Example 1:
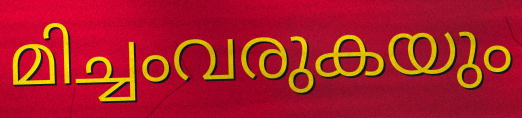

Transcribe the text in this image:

മിച്ചംവരുകയും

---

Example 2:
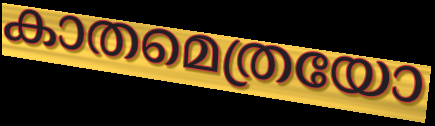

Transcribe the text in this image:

കാതമെത്രയോ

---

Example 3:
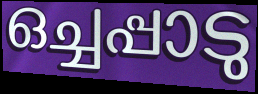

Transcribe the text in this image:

ഒച്ചപ്പാടു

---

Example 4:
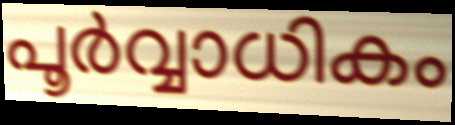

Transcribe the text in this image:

പൂർവ്വാധികം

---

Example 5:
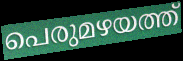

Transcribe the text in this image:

പെരുമഴയത്ത്